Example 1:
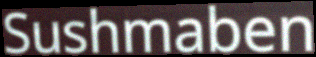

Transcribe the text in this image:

Sushmaben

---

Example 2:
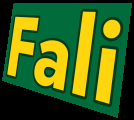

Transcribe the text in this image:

Fali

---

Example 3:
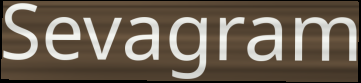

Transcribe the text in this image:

Sevagram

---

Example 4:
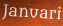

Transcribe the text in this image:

Januari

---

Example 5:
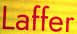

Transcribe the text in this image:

Laffer